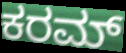
ಕರಮ್